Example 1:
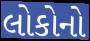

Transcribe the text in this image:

લોકોનો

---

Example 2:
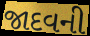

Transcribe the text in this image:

જાદવની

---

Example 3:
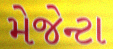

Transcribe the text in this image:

મેજેન્ટા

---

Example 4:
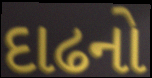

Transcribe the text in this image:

દાઢનો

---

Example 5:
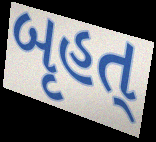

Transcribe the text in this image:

બૃહત્